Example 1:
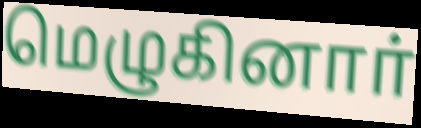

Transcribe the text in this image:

மெழுகினார்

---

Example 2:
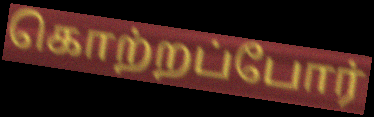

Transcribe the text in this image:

கொற்றப்போர்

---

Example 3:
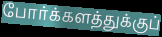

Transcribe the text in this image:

போர்க்களத்துக்குப்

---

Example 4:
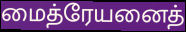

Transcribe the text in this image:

மைத்ரேயனைத்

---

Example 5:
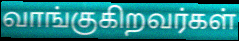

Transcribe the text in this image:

வாங்குகிறவர்கள்